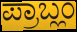
ಪ್ರಾಬ್ಲಂ